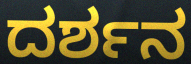
ದರ್ಶನ